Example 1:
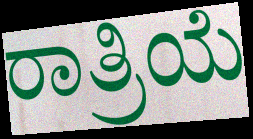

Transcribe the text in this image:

ರಾತ್ರಿಯೆ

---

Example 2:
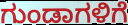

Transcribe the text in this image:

ಗುಂಡಾಗಳಿಗೆ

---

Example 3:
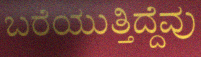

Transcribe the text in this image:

ಬರೆಯುತ್ತಿದ್ದೆವು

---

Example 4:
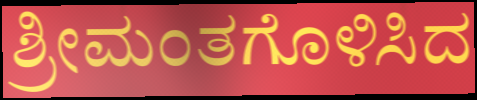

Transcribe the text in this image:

ಶ್ರೀಮಂತಗೊಳಿಸಿದ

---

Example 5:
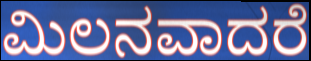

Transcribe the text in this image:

ಮಿಲನವಾದರೆ